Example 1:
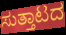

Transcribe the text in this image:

ಸುತ್ತಾಟದ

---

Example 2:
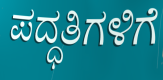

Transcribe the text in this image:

ಪದ್ಧತಿಗಳಿಗೆ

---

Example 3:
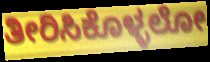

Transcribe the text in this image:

ತೀರಿಸಿಕೊಳ್ಳಲೋ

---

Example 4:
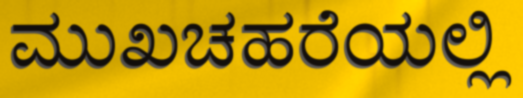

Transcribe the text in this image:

ಮುಖಚಹರೆಯಲ್ಲಿ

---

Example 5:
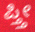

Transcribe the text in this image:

ಪ್ತ್ತೀ